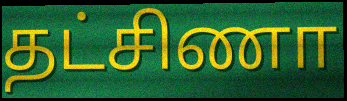
தட்சிணா